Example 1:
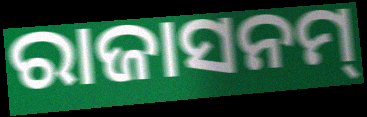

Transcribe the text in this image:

ରାଜାସନମ୍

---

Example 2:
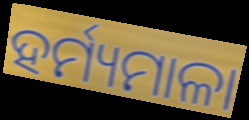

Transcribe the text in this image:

ହର୍ମ୍ୟମାଳା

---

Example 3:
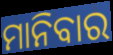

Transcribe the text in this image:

ମାନିବାର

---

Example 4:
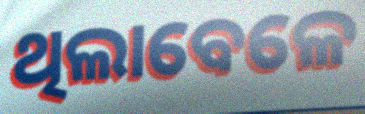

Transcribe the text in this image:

ଥିଲାବେଳେ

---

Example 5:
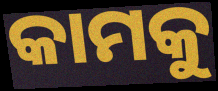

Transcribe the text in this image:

କାମକୁ